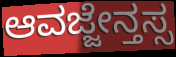
ಆವಜ್ಜೇನ್ತಸ್ಸ